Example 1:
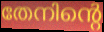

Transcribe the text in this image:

തേനിന്റെ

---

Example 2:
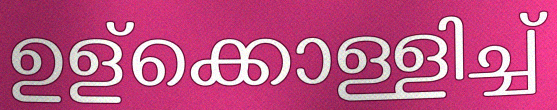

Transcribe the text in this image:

ഉള്ക്കൊള്ളിച്ച്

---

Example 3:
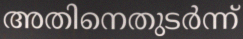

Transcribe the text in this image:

അതിനെതുടർന്ന്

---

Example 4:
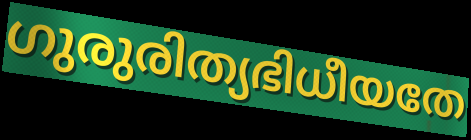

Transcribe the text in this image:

ഗുരുരിത്യഭിധീയതേ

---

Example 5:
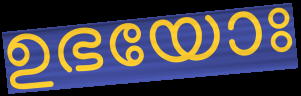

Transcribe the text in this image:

ഉഭയോഃ